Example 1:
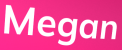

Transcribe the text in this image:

Megan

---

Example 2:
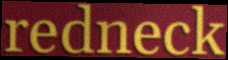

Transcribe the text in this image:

redneck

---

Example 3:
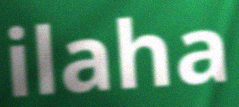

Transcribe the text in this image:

ilaha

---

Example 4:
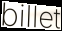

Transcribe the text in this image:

billet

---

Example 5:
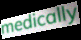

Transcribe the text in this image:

medically